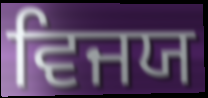
ਵਿਜਯ